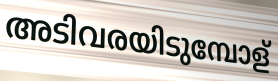
അടിവരയിടുമ്പോള്